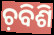
ଚ଼ବିଶି